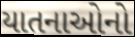
યાતનાઓનો